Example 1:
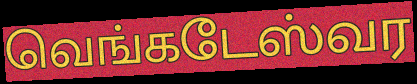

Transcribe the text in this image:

வெங்கடேஸ்வர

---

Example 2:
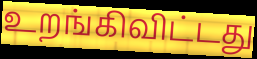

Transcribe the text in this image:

உறங்கிவிட்டது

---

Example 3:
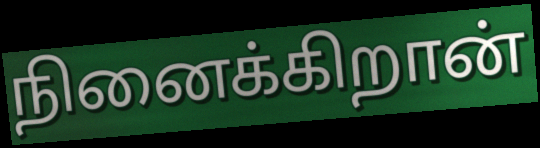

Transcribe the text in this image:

நினைக்கிறான்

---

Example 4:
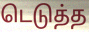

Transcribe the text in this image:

டெடுத்த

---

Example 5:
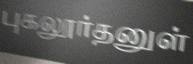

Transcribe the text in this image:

புகலூர்தனுள்